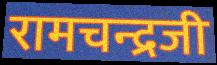
रामचन्द्रजी